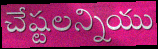
చేష్టలన్నియు